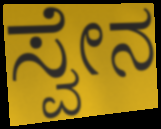
ಸ್ವೇನ